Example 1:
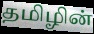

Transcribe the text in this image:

தமிழின்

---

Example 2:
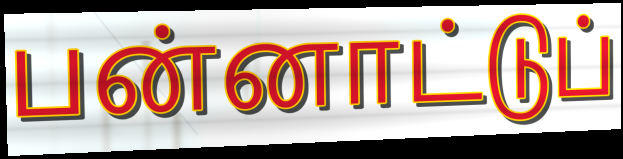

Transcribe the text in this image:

பன்னாட்டுப்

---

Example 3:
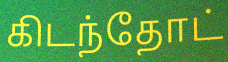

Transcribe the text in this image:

கிடந்தோட்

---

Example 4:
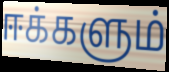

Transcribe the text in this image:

ஈக்களும்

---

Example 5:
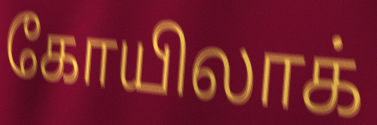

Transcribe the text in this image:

கோயிலாக்